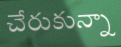
చేరుకున్నా